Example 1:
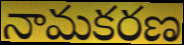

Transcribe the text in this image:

నామకరణ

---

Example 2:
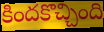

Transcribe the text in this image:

కిందకొచ్చింది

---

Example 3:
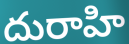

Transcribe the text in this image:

దురాహి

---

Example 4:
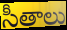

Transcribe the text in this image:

సీతాలు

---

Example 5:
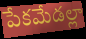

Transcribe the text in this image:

పేకమేడల్లా